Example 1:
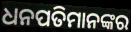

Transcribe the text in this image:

ଧନପତିମାନଙ୍କର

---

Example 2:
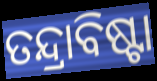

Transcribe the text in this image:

ତନ୍ଦ୍ରାବିଷ୍ଟା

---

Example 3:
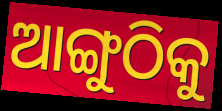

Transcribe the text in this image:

ଆଙ୍ଗୁଠିକୁ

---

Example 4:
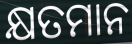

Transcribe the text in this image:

କ୍ଷତମାନ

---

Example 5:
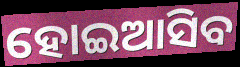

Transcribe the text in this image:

ହୋଇଆସିବ